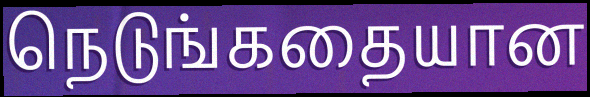
நெடுங்கதையான